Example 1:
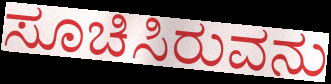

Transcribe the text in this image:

ಸೂಚಿಸಿರುವನು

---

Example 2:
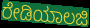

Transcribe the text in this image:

ರೇಡಿಯಾಲಜಿ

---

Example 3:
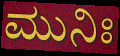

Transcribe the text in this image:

ಮುನಿಃ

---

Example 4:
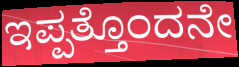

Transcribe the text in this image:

ಇಪ್ಪತ್ತೊಂದನೇ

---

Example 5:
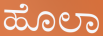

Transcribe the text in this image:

ಹೊಲಾ